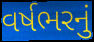
વર્ષભરનું